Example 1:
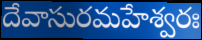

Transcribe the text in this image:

దేవాసురమహేశ్వరః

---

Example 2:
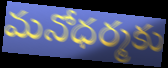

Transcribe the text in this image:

మనోధర్మకు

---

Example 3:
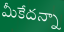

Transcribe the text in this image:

మీకేదన్నా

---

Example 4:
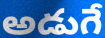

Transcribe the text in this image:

అడుగే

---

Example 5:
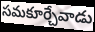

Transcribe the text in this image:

సమకూర్చేవాడు